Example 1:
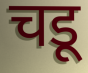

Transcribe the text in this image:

चडू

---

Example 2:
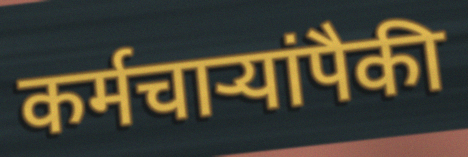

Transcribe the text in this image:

कर्मचाऱ्यांपैकी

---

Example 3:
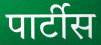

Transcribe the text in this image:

पार्टीस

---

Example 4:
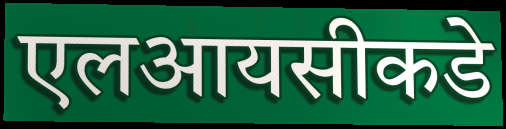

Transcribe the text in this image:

एलआयसीकडे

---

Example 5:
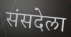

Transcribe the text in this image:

संसदेला